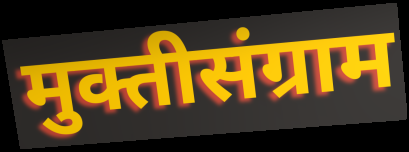
मुक्तीसंग्राम